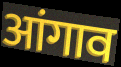
आंगाव